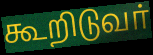
கூறிடுவர்